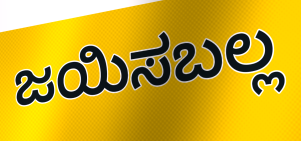
ಜಯಿಸಬಲ್ಲ